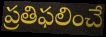
ప్రతిఫలించే